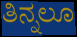
ತಿನ್ನಲೂ